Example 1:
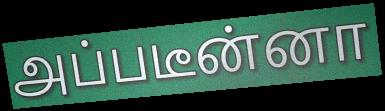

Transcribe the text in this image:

அப்படீன்னா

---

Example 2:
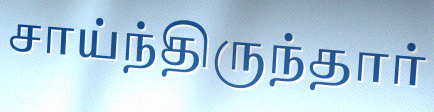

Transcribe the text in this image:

சாய்ந்திருந்தார்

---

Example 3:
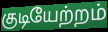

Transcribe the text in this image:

குடியேற்றம்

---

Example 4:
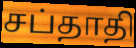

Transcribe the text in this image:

சப்தாதி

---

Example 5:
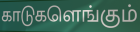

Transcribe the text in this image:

காடுகளெங்கும்